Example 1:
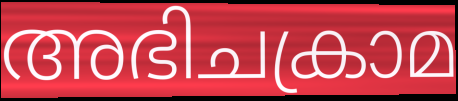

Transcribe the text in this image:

അഭിചക്രാമ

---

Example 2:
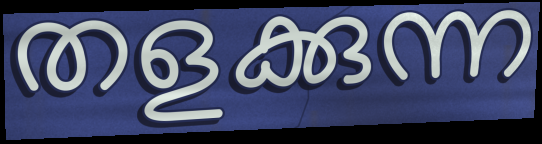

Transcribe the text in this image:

തളക്കുന്ന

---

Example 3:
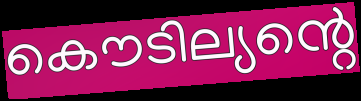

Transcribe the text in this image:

കൌടില്യന്റെ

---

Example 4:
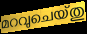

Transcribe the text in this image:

മറവുചെയ്തു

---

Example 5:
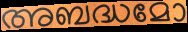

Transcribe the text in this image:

അബദ്ധമോ